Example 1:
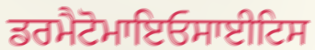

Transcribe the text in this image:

ਡਰਮੈਟੋਮਾਇਓਸਾਈਟਿਸ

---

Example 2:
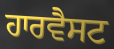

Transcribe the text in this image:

ਹਾਰਵੈਸਟ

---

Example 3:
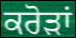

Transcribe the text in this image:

ਕਰੋੜਾਂ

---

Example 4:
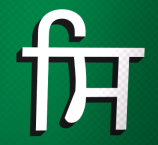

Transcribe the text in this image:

ਸਿ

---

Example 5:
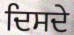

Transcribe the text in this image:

ਦਿਸਦੇ